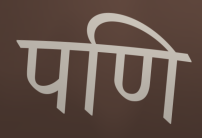
पणि